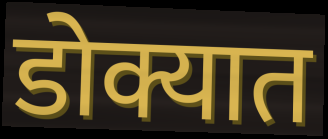
डोक्यात